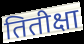
तितीक्षा